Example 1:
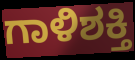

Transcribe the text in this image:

ಗಾಳಿಶಕ್ತಿ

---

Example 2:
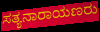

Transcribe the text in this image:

ಸತ್ಯನಾರಾಯಣರು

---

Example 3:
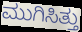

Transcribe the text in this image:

ಮುಗಿಸಿತ್ತು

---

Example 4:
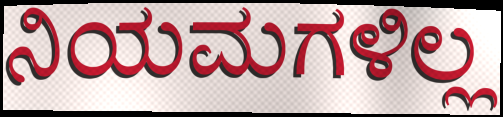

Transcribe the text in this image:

ನಿಯಮಗಳಿಲ್ಲ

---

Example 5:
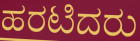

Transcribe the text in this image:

ಹರಟಿದರು